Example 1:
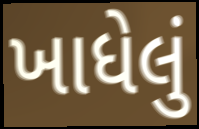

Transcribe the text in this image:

ખાધેલું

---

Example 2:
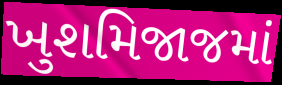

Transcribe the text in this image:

ખુશમિજાજમાં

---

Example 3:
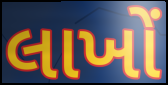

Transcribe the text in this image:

લાખોં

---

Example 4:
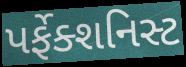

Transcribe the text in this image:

પર્ફેક્શનિસ્ટ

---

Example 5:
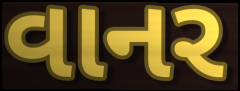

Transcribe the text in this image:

વાનર